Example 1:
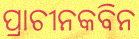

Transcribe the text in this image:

ପ୍ରାଚୀନକବିନ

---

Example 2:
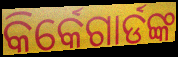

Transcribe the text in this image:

କିର୍କେଗାର୍ଡଙ୍କ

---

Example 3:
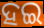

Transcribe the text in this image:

ହଇ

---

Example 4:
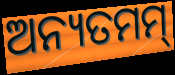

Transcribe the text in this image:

ଅନ୍ୟତମମ୍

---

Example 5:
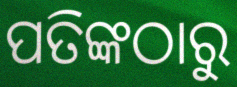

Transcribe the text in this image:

ପତିଙ୍କଠାରୁ